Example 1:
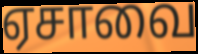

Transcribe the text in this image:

ஏசாவை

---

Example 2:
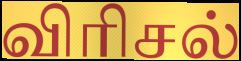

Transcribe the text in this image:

விரிசல்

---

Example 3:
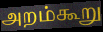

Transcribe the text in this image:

அறம்கூறு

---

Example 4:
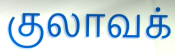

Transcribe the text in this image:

குலாவக்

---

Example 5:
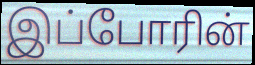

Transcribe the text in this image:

இப்போரின்